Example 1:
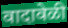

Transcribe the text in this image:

वादावेळी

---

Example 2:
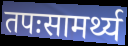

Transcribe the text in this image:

तपःसामर्थ्य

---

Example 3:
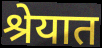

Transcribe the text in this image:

श्रेयात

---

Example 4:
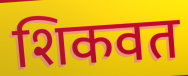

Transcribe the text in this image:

शिकवत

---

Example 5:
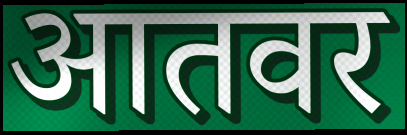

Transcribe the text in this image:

आतवर